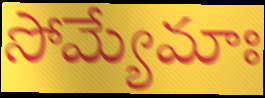
సోమ్యేమాః